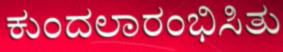
ಕುಂದಲಾರಂಭಿಸಿತು